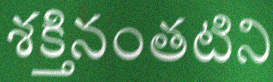
శక్తినంతటిని